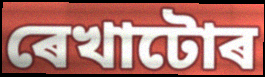
ৰেখাটোৰ